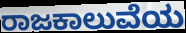
ರಾಜಕಾಲುವೆಯ